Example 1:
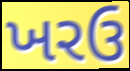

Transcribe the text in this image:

ખરઉ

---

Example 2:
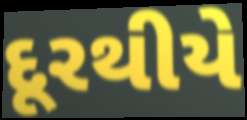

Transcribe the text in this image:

દૂરથીયે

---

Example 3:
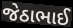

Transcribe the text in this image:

જેઠાભાઈ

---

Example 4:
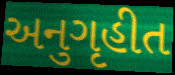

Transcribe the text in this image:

અનુગૃહીત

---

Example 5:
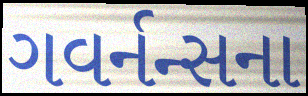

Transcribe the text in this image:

ગવર્નન્સના